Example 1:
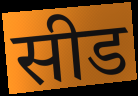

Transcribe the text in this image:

सीड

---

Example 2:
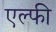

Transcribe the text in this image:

एल्फी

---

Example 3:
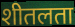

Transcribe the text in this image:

शीतलता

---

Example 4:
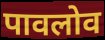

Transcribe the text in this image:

पावलोव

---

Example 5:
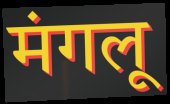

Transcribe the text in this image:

मंगलू